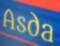
Asda